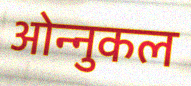
ओन्नुकल